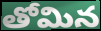
తోమిన